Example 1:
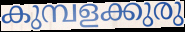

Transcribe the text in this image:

കുമ്പളക്കുരു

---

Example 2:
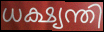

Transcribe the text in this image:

ധക്ഷ്യന്തി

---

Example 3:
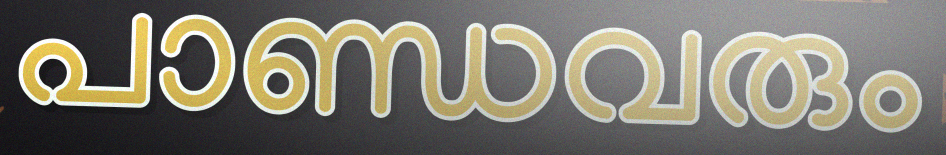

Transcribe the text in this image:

പാണ്ഡവരും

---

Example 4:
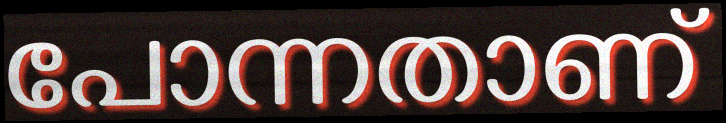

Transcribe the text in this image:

പോന്നതാണ്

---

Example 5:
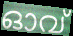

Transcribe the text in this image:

ഓവ്